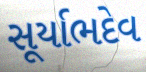
સૂર્યાભદેવ